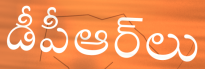
డీపీఆర్‌లు